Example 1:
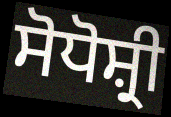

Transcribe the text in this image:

ਸੋਧੋਸ਼੍ਰੀ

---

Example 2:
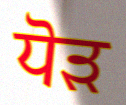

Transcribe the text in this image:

ਧੋੜ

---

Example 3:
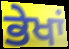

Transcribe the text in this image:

ਭੇਖਾਂ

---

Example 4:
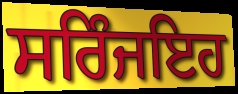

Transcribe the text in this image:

ਸਰਿੰਜਇਹ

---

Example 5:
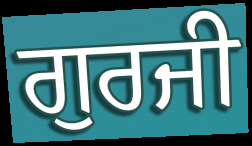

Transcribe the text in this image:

ਗੁਰਜੀ